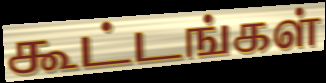
கூட்டங்கள்